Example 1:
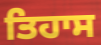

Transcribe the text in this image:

ਤਿਹਾਸ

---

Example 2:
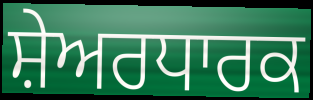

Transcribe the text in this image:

ਸ਼ੇਅਰਧਾਰਕ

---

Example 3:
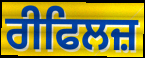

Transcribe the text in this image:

ਰੀਫਿਲਜ਼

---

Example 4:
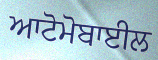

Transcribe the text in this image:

ਆਟੋਮੋਬਾਈਲ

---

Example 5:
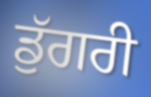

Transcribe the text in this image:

ਡੁੱਗਰੀ